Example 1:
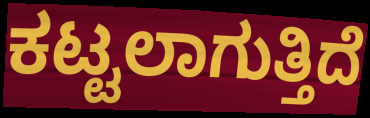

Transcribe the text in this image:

ಕಟ್ಟಲಾಗುತ್ತಿದೆ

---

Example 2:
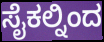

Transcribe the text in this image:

ಸೈಕಲ್ನಿಂದ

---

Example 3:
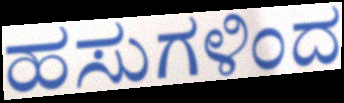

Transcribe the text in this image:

ಹಸುಗಳಿಂದ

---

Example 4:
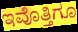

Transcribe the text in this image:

ಇವೊತ್ತಿಗೂ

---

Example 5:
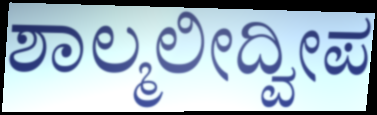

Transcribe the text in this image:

ಶಾಲ್ಮಲೀದ್ವೀಪ